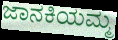
ಜಾನಕಿಯಮ್ಮ